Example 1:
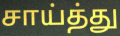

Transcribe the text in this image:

சாய்த்து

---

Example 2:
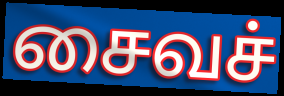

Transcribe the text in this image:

சைவச்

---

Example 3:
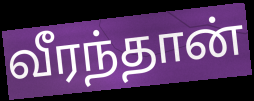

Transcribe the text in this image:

வீரந்தான்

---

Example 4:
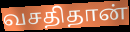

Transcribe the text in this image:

வசதிதான்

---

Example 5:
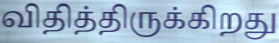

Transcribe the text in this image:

விதித்திருக்கிறது